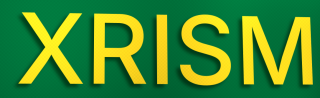
XRISM